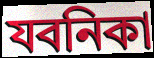
যবনিকা